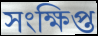
সংক্ষিপ্ত